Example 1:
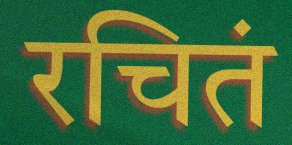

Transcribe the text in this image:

रचितं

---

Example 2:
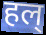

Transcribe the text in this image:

हल्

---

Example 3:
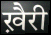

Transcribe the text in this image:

ख़ैरी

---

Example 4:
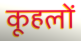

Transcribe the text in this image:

कूहलों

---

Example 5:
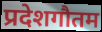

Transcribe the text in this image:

प्रदेशगौतम